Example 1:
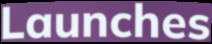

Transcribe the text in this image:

Launches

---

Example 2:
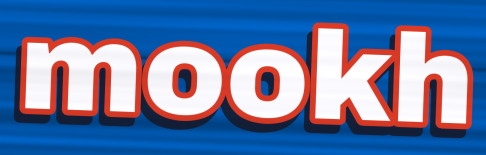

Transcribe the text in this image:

mookh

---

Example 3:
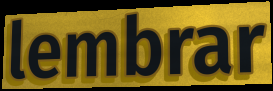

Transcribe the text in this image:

lembrar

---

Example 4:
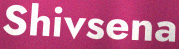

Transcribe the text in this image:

Shivsena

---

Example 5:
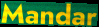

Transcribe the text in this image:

Mandar